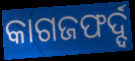
କାଗଜଫର୍ଦ୍ଦ